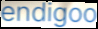
endigoo